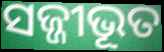
ସଜ୍ଜୀଭୂତ